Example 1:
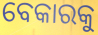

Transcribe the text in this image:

ବେକାରକୁ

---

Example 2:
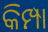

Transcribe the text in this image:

କିମ୍ପା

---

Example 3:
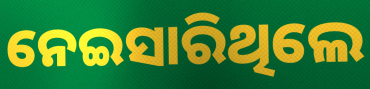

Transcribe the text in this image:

ନେଇସାରିଥିଲେ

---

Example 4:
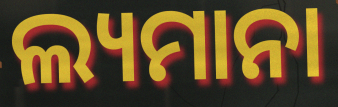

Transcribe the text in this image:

ଲ୍ୟମାନା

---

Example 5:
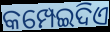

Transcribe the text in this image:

କମ୍ପେଇଦିଏ